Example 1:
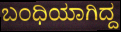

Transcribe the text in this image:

ಬಂಧಿಯಾಗಿದ್ದ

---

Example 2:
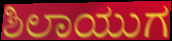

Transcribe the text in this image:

ಶಿಲಾಯುಗ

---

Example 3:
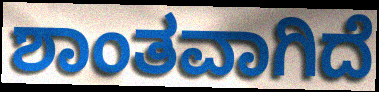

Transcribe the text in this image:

ಶಾಂತವಾಗಿದೆ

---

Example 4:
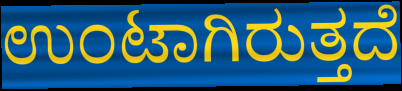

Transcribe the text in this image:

ಉಂಟಾಗಿರುತ್ತದೆ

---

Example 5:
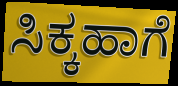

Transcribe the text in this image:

ಸಿಕ್ಕಹಾಗೆ